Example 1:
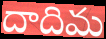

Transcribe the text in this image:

దాదిమ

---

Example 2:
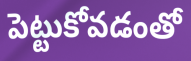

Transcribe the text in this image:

పెట్టుకోవడంతో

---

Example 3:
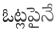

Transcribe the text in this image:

ఓట్లపైనే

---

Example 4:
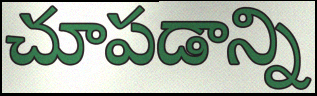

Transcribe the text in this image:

చూపడాన్ని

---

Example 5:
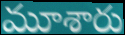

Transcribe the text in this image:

మూశారు